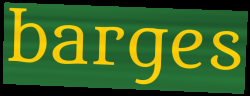
barges